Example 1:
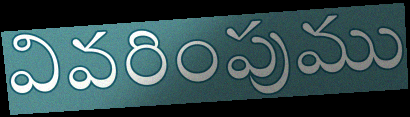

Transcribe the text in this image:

వివరింపుము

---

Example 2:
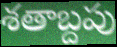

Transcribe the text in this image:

శతాబ్దపు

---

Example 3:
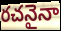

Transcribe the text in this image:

రచనైనా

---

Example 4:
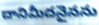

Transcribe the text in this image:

దానిమీదనైనను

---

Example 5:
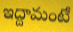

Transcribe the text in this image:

ఇద్దామంటే